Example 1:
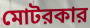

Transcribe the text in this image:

মোটরকার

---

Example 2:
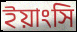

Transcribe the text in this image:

ইয়াংসি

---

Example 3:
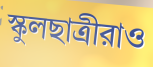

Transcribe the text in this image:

স্কুলছাত্রীরাও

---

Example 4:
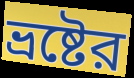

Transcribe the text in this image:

ভ্রষ্টের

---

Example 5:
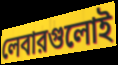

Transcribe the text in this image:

লেবারগুলোই